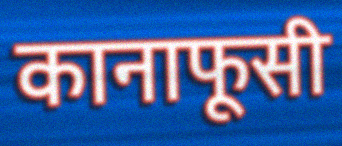
कानाफूसी